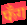
फँग